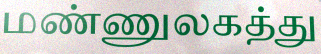
மண்ணுலகத்து